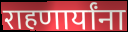
राहणार्यांना